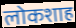
लोकशाह